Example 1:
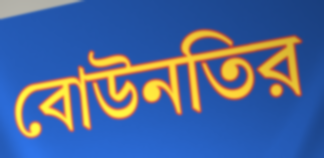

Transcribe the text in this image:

বোউনতির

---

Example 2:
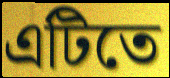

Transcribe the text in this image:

এটিতে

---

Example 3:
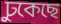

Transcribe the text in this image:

ঢুকেছে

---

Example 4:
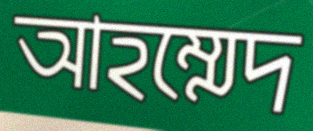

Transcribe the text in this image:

আহম্মেদ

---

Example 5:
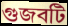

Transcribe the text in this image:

গুজবটি